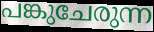
പങ്കുചേരുന്ന